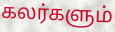
கலர்களும்